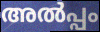
അൽപ്പം